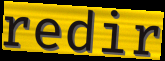
redir